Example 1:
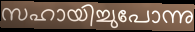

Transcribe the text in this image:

സഹായിച്ചുപോന്നു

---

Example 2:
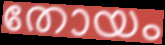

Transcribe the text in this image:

തോയം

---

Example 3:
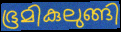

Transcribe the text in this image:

ഭൂമികുലുങ്ങി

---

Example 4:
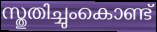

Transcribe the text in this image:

സ്തുതിച്ചുംകൊണ്ട്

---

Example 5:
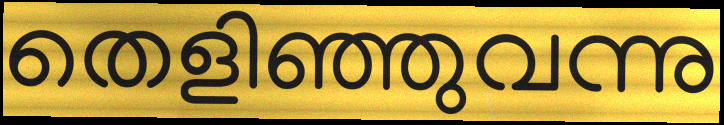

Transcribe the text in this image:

തെളിഞ്ഞുവന്നു